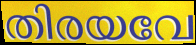
തിരയവേ